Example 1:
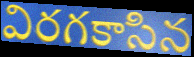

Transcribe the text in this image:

విరగకాసిన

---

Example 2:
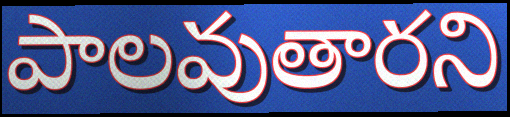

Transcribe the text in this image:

పాలవుతారని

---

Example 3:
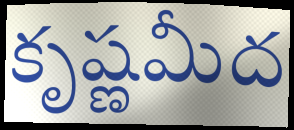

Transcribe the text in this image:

కృష్ణమీద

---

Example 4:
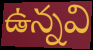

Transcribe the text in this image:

ఉన్నవి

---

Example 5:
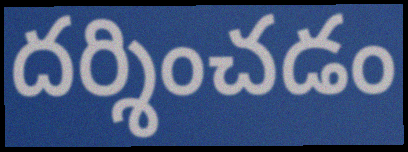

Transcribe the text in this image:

దర్శించడం